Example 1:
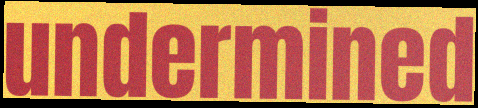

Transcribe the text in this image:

undermined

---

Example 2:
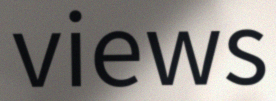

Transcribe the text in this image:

views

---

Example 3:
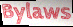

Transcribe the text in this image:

Bylaws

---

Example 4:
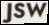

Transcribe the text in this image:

JSW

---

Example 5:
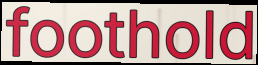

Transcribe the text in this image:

foothold